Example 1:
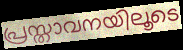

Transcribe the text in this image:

പ്രസ്താവനയിലൂടെ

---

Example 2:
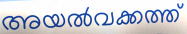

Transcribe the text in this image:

അയൽവക്കത്ത്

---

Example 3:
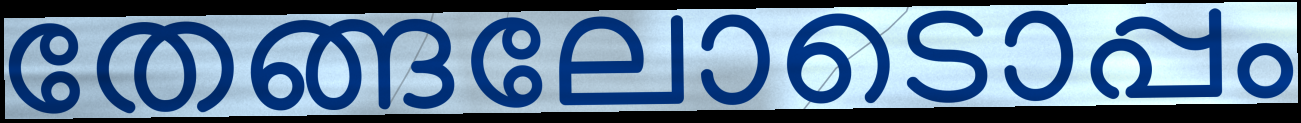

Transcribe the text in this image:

തേങ്ങലോടൊപ്പം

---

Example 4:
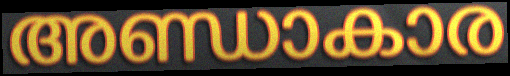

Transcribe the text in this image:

അണ്ഡാകാര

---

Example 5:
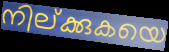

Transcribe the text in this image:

നില്ക്കുകയെ